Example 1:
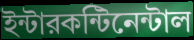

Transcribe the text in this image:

ইন্টারকন্টিনেন্টাল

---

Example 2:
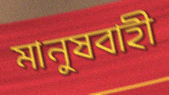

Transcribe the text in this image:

মানুষবাহী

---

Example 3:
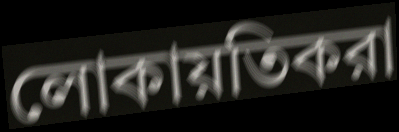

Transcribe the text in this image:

লোকায়তিকরা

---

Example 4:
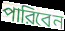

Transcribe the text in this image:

পারিবেন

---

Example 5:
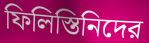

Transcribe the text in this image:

ফিলিস্তিনিদের